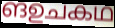
ങഉചകഥ